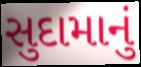
સુદામાનું